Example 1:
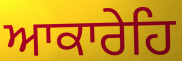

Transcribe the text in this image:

ਆਕਾਰੇਹਿ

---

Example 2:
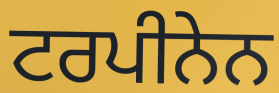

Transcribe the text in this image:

ਟਰਪੀਨੇਨ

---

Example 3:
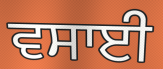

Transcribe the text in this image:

ਵਸਾਈ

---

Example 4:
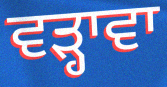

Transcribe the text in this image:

ਵੜ੍ਹਾਵਾ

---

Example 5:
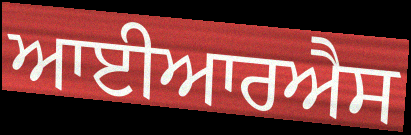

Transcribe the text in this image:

ਆਈਆਰਐਸ